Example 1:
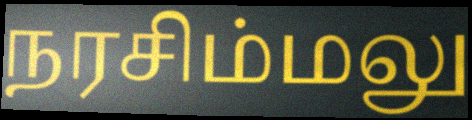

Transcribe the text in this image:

நரசிம்மலு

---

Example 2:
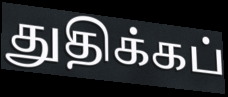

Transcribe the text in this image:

துதிக்கப்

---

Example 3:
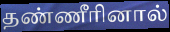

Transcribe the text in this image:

தண்ணீரினால்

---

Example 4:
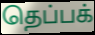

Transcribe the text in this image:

தெப்பக்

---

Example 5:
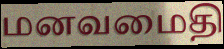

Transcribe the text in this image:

மனவமைதி